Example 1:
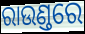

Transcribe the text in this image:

ରାଉଣ୍ଡରେ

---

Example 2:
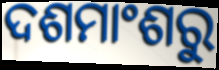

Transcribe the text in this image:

ଦଶମାଂଶରୁ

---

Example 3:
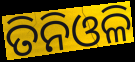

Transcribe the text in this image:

ତିନିଓଳି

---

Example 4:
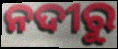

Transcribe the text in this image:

ନଦୀରୁ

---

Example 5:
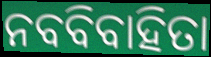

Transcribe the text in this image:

ନବବିବାହିତା